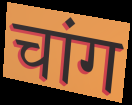
चांग